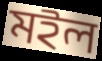
মইল